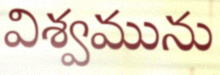
విశ్వమును